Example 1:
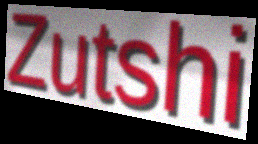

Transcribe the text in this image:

Zutshi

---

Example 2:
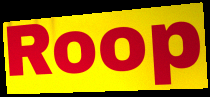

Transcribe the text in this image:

Roop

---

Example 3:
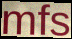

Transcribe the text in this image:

mfs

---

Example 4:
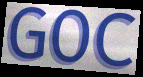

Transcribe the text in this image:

GOC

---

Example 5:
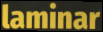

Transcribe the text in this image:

laminar